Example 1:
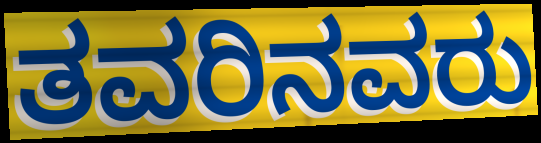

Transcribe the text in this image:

ತವರಿನವರು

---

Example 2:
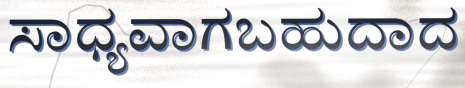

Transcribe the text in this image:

ಸಾಧ್ಯವಾಗಬಹುದಾದ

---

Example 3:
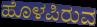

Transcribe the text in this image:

ಹೊಳಪಿರುವ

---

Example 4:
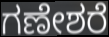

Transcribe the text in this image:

ಗಣೇಶರೆ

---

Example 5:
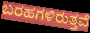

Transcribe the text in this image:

ಬರಹಗಳಿರುತ್ತವೆ